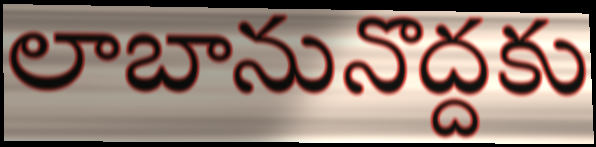
లాబానునొద్దకు